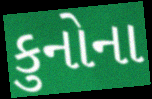
કુનોના